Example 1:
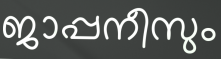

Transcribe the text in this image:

ജാപ്പനീസും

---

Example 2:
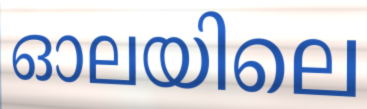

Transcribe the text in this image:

ഓലയിലെ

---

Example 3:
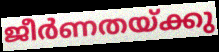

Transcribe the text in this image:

ജീർണതയ്ക്കു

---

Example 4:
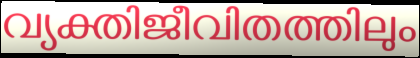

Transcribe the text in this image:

വ്യക്തിജീവിതത്തിലും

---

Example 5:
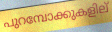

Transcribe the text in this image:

പുറമ്പോക്കുകളില്